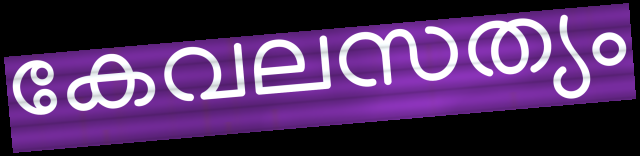
കേവലസത്യം